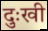
दुःखी